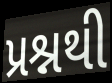
પ્રશ્નથી